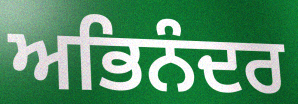
ਅਭਿਨੰਦਰ